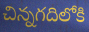
చిన్నగదిలోకి